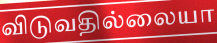
விடுவதில்லையா